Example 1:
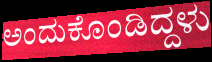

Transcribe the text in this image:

ಅಂದುಕೊಂಡಿದ್ದಳು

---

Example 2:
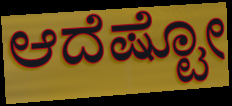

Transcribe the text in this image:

ಆದೆಷ್ಟೋ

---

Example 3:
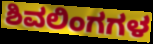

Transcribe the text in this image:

ಶಿವಲಿಂಗಗಳ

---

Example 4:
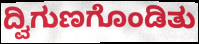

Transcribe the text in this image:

ದ್ವಿಗುಣಗೊಂಡಿತು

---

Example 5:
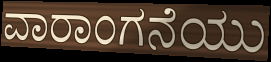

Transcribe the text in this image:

ವಾರಾಂಗನೆಯು